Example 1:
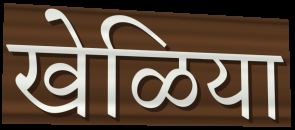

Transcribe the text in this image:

खेळिया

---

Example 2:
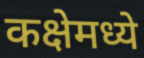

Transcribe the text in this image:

कक्षेमध्ये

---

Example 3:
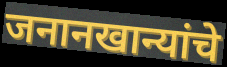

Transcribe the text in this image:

जनानखान्यांचे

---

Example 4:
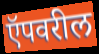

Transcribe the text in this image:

ऍपवरील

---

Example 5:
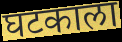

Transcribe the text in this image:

घटकाला